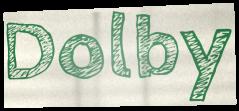
Dolby